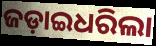
ଜଡ଼ାଇଧରିଲା